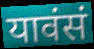
यावंसं